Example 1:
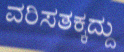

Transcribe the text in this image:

ವರಿಸತಕ್ಕದ್ದು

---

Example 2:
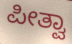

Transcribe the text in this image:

ಪೀತ್ವಾ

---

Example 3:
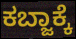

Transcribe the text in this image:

ಕಬ್ಜಾಕ್ಕೆ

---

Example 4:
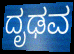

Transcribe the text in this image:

ದೃಢವ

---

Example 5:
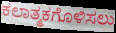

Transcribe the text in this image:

ಕಲಾತ್ಮಕಗೊಳಿಸಲು